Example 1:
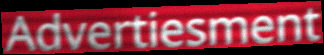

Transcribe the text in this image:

Advertiesment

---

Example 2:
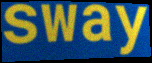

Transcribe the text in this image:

sway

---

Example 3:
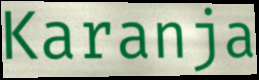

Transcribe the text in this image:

Karanja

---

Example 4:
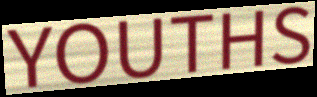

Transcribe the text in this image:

YOUTHS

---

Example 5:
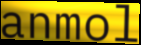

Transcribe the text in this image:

anmol